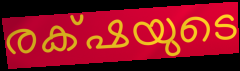
രക്‌ഷയുടെ